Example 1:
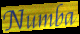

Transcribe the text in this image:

Numba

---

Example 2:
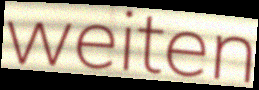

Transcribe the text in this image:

weiten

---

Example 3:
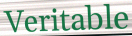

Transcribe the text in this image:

Veritable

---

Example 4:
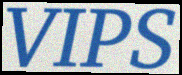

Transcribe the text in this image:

VIPS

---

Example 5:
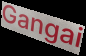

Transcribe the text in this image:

Gangai